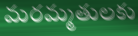
మరమ్మతులకు